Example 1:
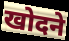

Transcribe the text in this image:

खोदने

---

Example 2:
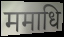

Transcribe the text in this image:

ममाधि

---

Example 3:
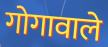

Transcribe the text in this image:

गोगावाले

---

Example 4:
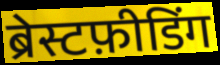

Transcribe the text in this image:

ब्रेस्टफ़ीडिंग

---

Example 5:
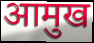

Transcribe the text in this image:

आमुख